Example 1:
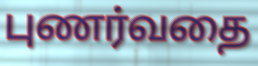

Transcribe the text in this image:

புணர்வதை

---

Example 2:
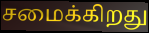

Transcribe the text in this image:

சமைக்கிறது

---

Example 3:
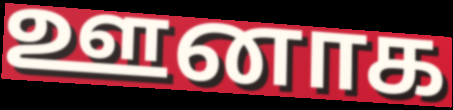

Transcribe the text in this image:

ஊனாக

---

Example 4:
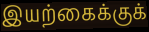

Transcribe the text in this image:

இயற்கைக்குக்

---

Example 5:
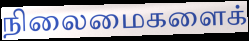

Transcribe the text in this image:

நிலைமைகளைக்